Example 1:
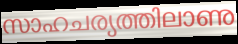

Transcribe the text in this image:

സാഹചര്യത്തിലാണു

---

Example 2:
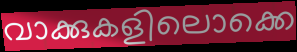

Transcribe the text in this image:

വാക്കുകളിലൊക്കെ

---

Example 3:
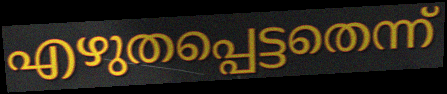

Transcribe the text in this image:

എഴുതപ്പെട്ടതെന്ന്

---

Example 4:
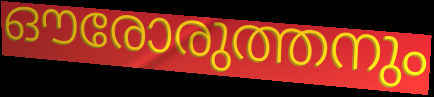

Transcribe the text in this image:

ഔരോരുത്തനും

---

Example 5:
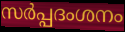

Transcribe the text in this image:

സർപ്പദംശനം